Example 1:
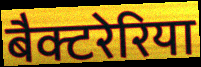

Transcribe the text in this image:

बैक्टरेरिया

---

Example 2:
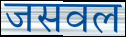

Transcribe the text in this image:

जसवल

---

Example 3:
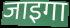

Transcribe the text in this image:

जाइगा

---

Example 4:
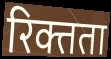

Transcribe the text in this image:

रिक्तता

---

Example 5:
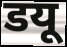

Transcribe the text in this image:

डयू